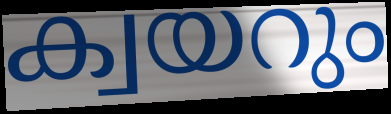
ക്വയറും